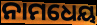
ନାମଧେୟ